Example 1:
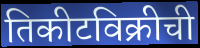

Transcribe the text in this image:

तिकीटविक्रीची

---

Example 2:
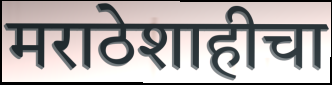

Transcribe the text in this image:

मराठेशाहीचा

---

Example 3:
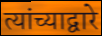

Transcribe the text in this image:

त्यांच्याद्वारे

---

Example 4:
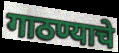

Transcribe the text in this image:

गाठण्याचे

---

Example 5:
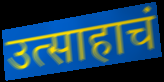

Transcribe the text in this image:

उत्साहाचं